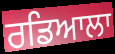
ਰਡਿਆਲਾ